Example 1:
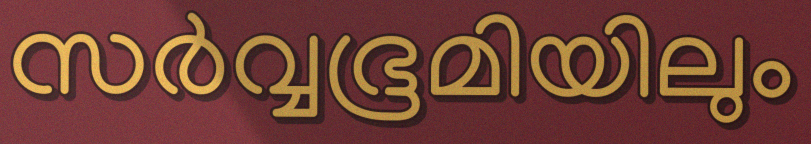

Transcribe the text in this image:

സർവ്വഭൂമിയിലും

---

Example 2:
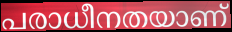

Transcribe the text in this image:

പരാധീനതയാണ്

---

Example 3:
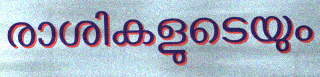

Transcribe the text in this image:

രാശികളുടെയും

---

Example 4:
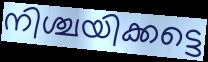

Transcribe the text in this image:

നിശ്ചയിക്കട്ടെ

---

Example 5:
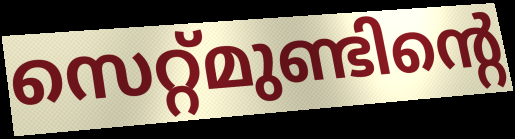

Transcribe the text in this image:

സെറ്റ്മുണ്ടിന്റെ